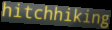
hitchhiking